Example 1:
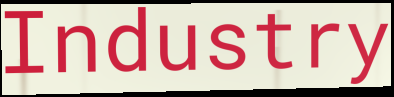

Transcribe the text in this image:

Industry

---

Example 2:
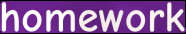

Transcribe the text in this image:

homework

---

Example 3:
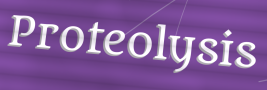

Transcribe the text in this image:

Proteolysis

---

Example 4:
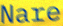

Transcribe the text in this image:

Nare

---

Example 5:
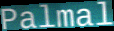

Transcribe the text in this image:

Palmal